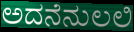
ಅದನೆನುಲಲಿ